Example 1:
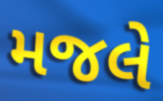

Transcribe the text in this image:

મજલે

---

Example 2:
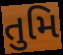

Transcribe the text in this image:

તુમિ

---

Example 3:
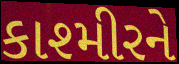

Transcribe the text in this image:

કાશ્મીરને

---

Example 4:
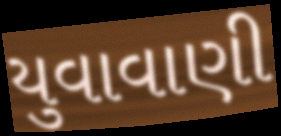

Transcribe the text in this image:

યુવાવાણી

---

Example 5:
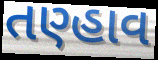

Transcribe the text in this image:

તણ્હાવ